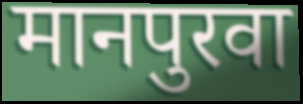
मानपुरवा